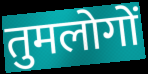
तुमलोगों